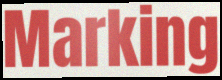
Marking